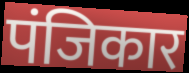
पंजिकार